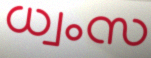
ധ്വംസ